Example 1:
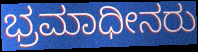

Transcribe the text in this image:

ಭ್ರಮಾಧೀನರು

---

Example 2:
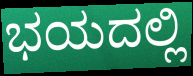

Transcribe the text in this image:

ಭಯದಲ್ಲಿ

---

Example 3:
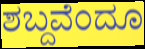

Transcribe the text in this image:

ಶಬ್ದವೆಂದೂ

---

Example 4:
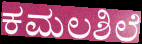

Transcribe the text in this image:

ಕಮಲಶಿಲೆ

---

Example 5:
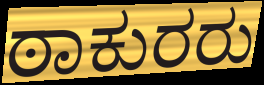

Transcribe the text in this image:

ಠಾಕುರರು